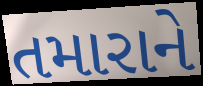
તમારાને